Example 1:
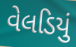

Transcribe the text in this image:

વેલડિયું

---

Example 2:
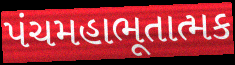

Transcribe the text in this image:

પંચમહાભૂતાત્મક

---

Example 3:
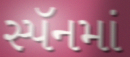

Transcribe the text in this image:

સ્પૅનમાં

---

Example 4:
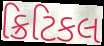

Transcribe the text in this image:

ક્રિટિકલ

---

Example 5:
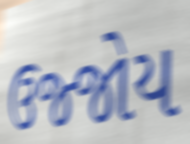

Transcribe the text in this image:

ઉજ્જોય